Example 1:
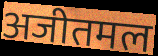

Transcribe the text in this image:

अजीतमल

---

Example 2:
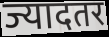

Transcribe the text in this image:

ज्यादतर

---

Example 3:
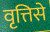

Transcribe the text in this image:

वृत्तिसे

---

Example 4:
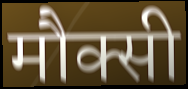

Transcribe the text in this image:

मौक्सी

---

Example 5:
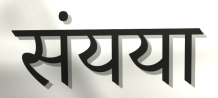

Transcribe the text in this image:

संयया